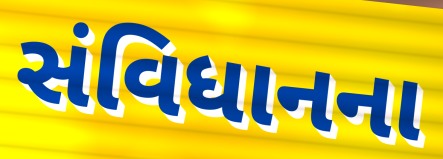
સંવિધાનના